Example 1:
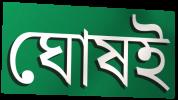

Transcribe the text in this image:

ঘোষই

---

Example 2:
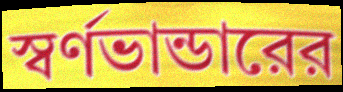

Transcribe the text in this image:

স্বর্ণভান্ডারের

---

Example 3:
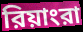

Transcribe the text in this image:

রিয়াংরা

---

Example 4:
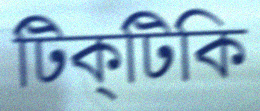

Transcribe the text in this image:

টিক্‌টিকি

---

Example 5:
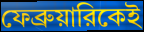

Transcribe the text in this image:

ফেব্রুয়ারিকেই